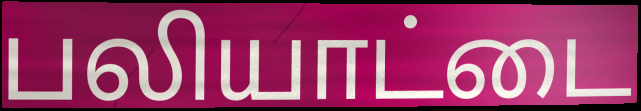
பலியாட்டை